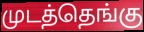
முடத்தெங்கு